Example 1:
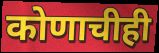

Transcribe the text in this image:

कोणाचीही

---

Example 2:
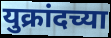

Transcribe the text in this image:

युक्रांदच्या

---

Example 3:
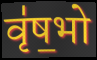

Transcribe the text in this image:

वृ॑ष॒भो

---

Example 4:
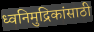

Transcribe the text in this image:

ध्वनिमुद्रिकांसाठी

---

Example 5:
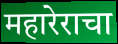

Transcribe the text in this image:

महारेराचा